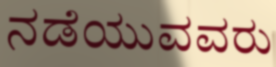
ನಡೆಯುವವರು